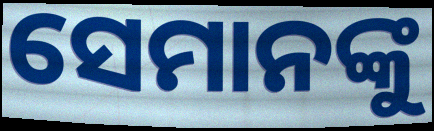
ସେମାନଙ୍କୁ